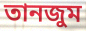
তানজুম